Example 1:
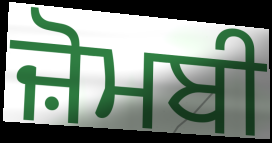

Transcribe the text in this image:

ਜ਼ੋਮਬੀ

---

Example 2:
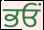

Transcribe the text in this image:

ਭਓਂ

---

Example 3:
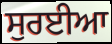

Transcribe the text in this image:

ਸੁਰਈਆ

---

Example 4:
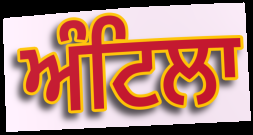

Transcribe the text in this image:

ਅੰਟਿਲਾ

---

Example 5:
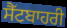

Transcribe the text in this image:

ਸੈੱਟਬਾਹਰੀ